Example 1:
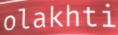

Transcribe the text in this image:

olakhti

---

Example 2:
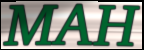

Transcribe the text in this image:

MAH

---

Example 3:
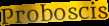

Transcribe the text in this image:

Proboscis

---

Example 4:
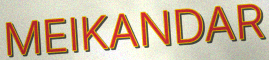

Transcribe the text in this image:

MEIKANDAR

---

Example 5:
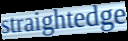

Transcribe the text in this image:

straightedge